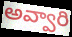
అవ్వారి